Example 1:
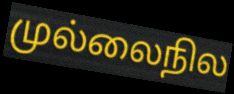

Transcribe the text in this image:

முல்லைநில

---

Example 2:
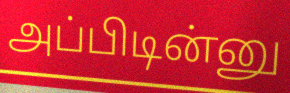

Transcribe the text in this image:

அப்பிடின்னு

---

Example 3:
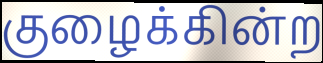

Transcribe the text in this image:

குழைக்கின்ற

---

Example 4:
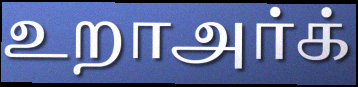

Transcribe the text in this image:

உறாஅர்க்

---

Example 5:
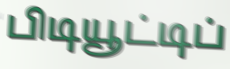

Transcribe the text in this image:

பிடியூட்டிப்